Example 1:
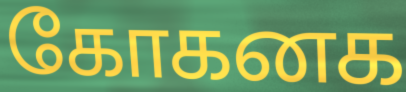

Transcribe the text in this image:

கோகனக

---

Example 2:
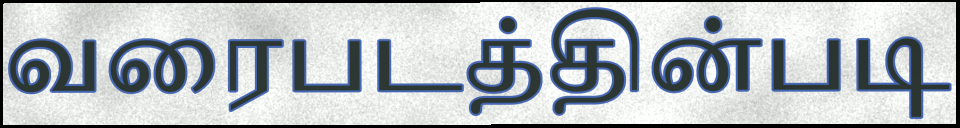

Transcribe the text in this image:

வரைபடத்தின்படி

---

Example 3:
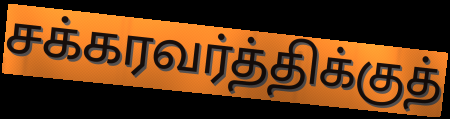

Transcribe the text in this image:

சக்கரவர்த்திக்குத்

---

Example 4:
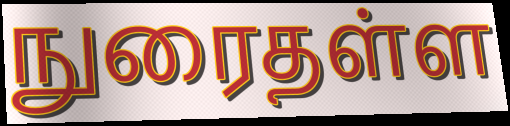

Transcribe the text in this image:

நுரைதள்ள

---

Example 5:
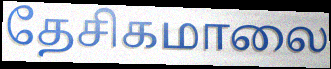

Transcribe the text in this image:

தேசிகமாலை